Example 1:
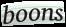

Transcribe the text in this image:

boons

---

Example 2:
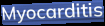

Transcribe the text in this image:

Myocarditis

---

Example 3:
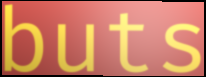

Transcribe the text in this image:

buts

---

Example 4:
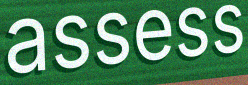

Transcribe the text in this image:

assess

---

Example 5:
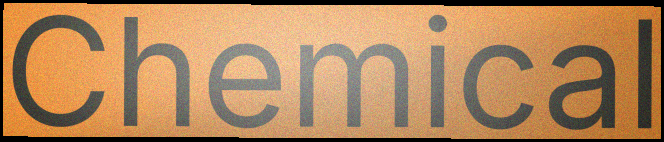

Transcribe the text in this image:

Chemical